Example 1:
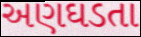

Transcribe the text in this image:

અણઘડતા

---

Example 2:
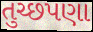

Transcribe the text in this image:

તુચ્છપણા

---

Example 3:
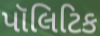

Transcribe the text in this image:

પૉલિટિક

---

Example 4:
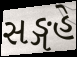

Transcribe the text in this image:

સઙ્ગહે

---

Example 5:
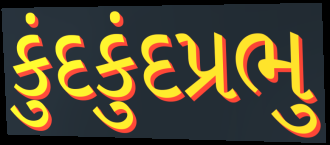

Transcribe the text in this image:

કુંદકુંદપ્રભુ